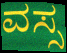
ವಸ್ಸ